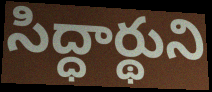
సిద్ధార్థుని